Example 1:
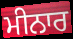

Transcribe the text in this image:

ਮੀਨਾਰ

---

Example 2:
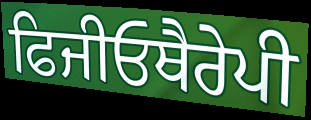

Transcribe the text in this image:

ਫਿਜੀਓਥੈਰੇਪੀ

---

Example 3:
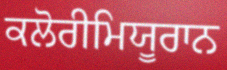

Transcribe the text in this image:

ਕਲੋਰੀਮਿਯੂਰਾਨ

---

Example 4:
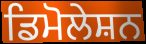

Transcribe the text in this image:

ਡਿਮੋਲੇਸ਼ਨ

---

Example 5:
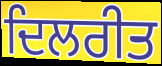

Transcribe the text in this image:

ਦਿਲਰੀਤ